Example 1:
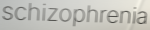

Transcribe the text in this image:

schizophrenia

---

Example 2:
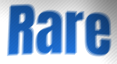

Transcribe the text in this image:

Rare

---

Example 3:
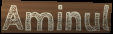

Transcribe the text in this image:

Aminul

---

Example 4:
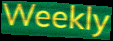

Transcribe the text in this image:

Weekly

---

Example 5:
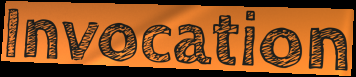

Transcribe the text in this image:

Invocation